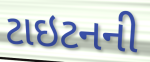
ટાઇટનની